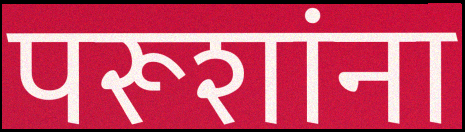
परूशांना